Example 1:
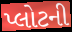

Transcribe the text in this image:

પ્લોટની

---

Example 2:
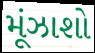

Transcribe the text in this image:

મૂંઝાશો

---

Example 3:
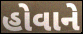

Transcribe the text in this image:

હોવાને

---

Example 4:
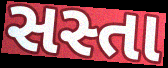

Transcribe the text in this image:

સસ્તા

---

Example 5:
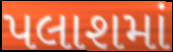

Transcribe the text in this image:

પલાશમાં